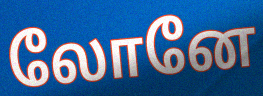
லோனே